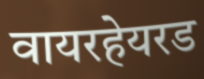
वायरहेयरड